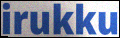
irukku